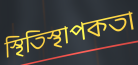
স্থিতিস্থাপকতা